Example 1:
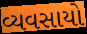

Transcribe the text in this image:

વ્યવસાયો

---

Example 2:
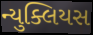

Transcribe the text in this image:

ન્યુક્લિયસ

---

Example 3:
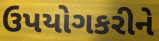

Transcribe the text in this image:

ઉપયોગકરીને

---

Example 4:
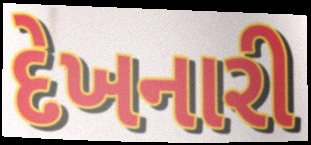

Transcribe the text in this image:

દેખનારી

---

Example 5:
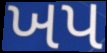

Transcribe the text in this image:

ખપ